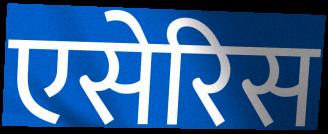
एसेरिस